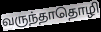
வருந்தாதொழி